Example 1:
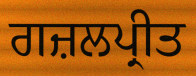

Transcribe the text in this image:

ਗਜ਼ਲਪ੍ਰੀਤ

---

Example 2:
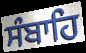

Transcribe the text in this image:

ਸੰਬਾਹਿ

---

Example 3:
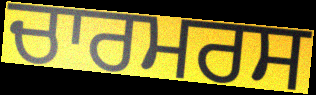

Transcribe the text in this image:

ਚਾਰਮਰਸ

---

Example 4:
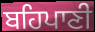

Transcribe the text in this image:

ਬਹਿਪਾਣੀ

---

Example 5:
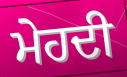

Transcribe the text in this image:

ਮੇਹਦੀ